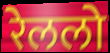
रेललो